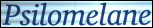
Psilomelane